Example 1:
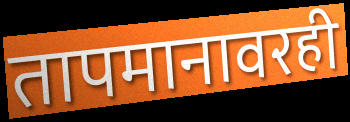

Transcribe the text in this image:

तापमानावरही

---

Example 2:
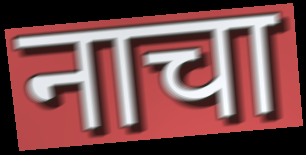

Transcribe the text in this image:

नाचा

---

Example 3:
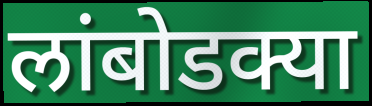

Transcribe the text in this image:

लांबोडक्या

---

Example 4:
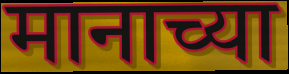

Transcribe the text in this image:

मानाच्या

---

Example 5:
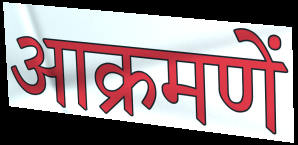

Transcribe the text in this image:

आक्रमणें